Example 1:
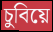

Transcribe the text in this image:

চুবিয়ে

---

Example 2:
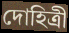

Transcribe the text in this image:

দোহিত্রী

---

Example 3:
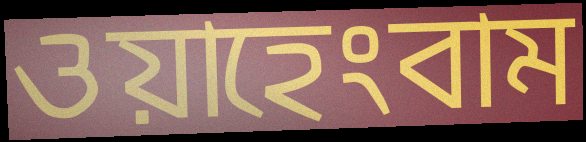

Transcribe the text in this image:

ওয়াহেংবাম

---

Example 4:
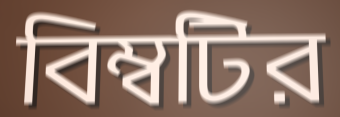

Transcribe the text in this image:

বিম্বটির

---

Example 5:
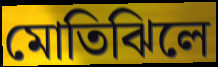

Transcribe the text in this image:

মোতিঝিলে